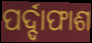
ପର୍ଦ୍ଦାଫାଶ